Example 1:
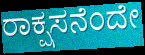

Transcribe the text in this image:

ರಾಕ್ಷಸನೆಂದೇ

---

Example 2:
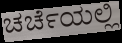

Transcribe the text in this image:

ಚರ್ಚೆಯಲ್ಲಿ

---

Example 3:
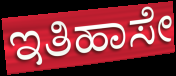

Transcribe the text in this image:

ಇತಿಹಾಸೇ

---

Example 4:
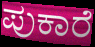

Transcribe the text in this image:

ಪುಕಾರೆ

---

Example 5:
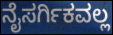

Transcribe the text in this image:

ನೈಸರ್ಗಿಕವಲ್ಲ